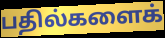
பதில்களைக்